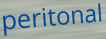
peritonal